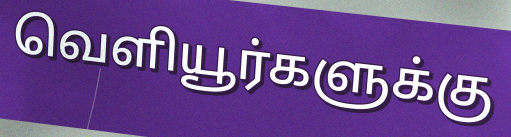
வெளியூர்களுக்கு